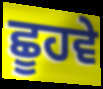
ਛੂਹਵੇ